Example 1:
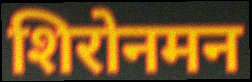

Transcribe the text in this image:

शिरोनमन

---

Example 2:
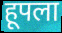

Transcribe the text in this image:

हूपला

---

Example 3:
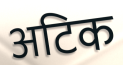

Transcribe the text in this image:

अटिक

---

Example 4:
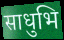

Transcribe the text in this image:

साधुभि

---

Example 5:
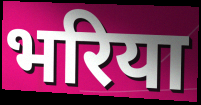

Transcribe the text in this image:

भरिया